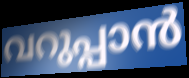
വറുപ്പാൻ